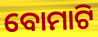
ବୋମାଟି